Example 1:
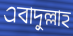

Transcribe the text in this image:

এবাদুল্লাহ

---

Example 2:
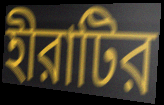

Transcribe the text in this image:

হীরাটির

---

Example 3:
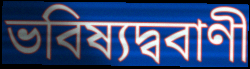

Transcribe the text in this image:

ভবিষ্যদ্ববাণী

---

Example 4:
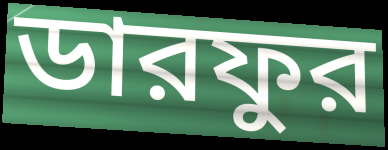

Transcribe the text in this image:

ডারফুর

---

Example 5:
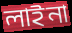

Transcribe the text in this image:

লাইনা